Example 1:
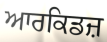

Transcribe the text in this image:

ਆਰਕਿਡਜ਼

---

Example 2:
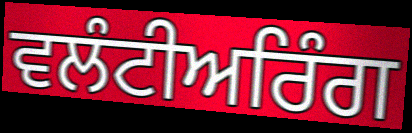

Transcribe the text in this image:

ਵਲੰਟੀਅਰਿੰਗ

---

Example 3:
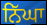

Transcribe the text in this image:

ਨਿੱਘਾ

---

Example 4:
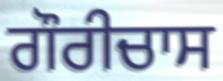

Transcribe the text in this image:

ਗੌਰੀਚਾਸ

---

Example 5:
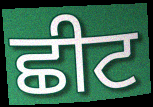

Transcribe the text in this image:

ਛੀਟ